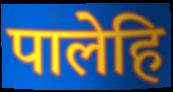
पालेहि